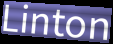
Linton